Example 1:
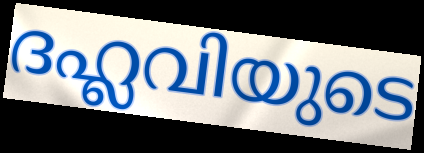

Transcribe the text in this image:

ദഹ്ലവിയുടെ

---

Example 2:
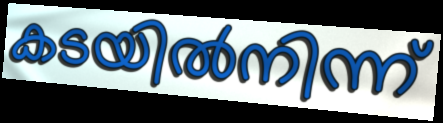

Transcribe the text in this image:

കടയിൽനിന്ന്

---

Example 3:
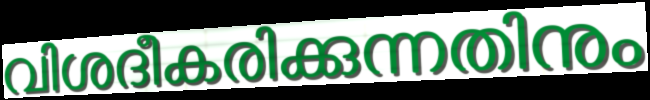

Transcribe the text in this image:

വിശദീകരിക്കുന്നതിനും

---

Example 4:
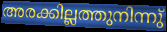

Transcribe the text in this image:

അരക്കില്ലത്തുനിന്നു്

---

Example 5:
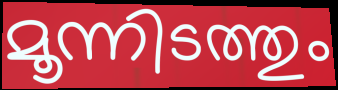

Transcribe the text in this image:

മൂന്നിടത്തും